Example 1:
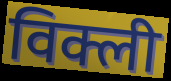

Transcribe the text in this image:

विक्ली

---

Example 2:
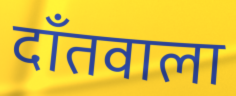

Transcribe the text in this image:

दाँतवाला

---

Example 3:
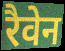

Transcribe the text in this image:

रैवेन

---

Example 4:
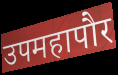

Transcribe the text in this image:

उपमहापौर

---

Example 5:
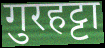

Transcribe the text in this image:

गुरहट्टा